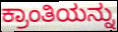
ಕ್ರಾಂತಿಯನ್ನು